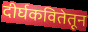
दीर्घकवितेतून